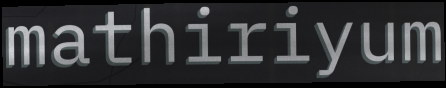
mathiriyum